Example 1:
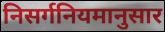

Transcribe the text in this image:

निसर्गनियमानुसार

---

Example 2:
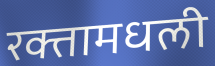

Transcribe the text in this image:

रक्तामधली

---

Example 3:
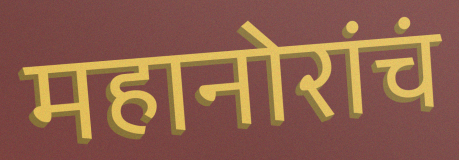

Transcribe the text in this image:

महानोरांचं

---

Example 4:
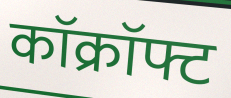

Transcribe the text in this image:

कॉक्रॉफ्ट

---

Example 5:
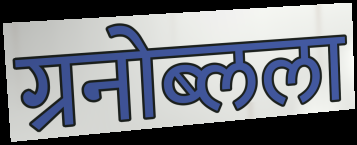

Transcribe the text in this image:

ग्रनोब्लला